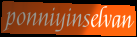
ponniyinselvan